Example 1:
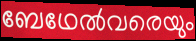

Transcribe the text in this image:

ബേഥേൽവരെയും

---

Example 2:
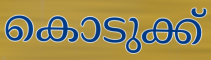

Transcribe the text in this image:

കൊടുക്ക്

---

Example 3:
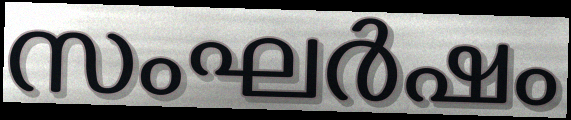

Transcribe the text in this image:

സംഘർഷം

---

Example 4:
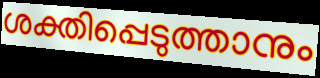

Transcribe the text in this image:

ശക്തിപ്പെടുത്താനും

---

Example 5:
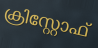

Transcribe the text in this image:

ക്രിസ്റ്റോഫ്